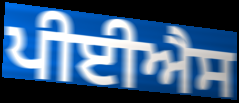
ਪੀਈਐਸ